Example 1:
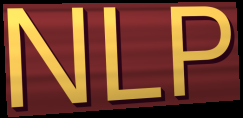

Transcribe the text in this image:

NLP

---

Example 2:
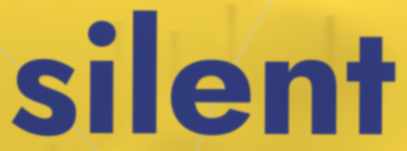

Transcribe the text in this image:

silent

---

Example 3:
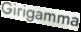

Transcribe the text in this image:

Girigamma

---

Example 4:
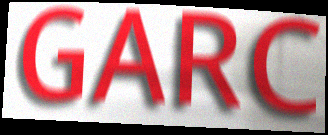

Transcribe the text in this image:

GARC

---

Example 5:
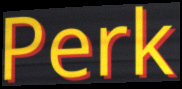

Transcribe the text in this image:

Perk